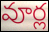
వూర్ల